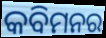
କବିମନର